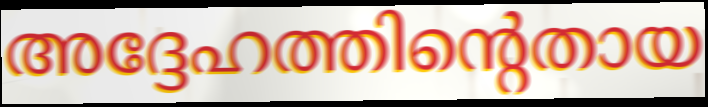
അദ്ദേഹത്തിന്റെതായ